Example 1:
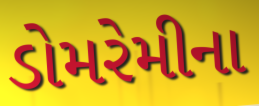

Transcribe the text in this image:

ડોમરેમીના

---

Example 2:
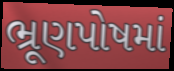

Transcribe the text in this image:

ભ્રૂણપોષમાં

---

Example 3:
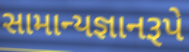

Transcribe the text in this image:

સામાન્યજ્ઞાનરૂપે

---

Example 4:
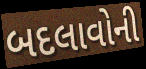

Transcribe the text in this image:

બદલાવોની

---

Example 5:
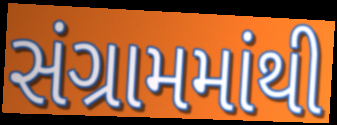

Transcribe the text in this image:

સંગ્રામમાંથી